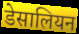
डेसालियन